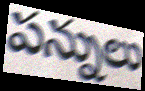
పన్నులు